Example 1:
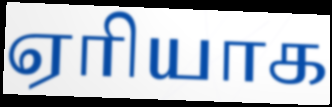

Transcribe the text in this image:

ஏரியாக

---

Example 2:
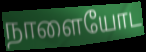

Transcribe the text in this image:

நாளையோட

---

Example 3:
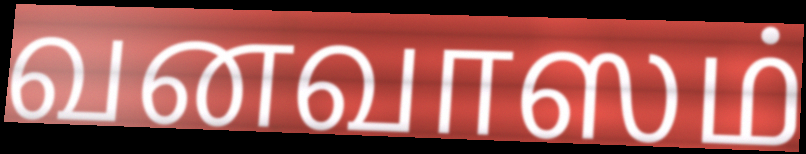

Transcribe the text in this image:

வனவாஸம்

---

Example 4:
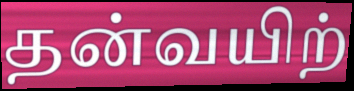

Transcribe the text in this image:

தன்வயிற்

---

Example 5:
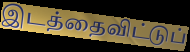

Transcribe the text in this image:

இடத்தைவிட்டுப்